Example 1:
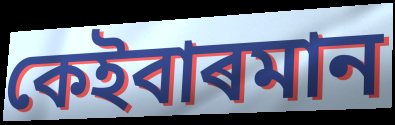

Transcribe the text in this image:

কেইবাৰমান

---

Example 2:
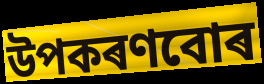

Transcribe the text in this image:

উপকৰণবোৰ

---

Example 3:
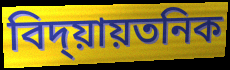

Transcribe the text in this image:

বিদ্য়ায়তনিক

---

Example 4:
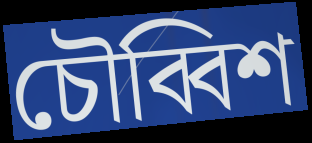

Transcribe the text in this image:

চৌব্বিশ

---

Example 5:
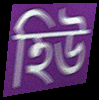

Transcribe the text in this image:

হিউ